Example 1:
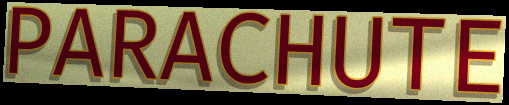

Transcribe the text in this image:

PARACHUTE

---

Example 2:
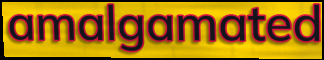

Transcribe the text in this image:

amalgamated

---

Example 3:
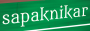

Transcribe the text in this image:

sapaknikar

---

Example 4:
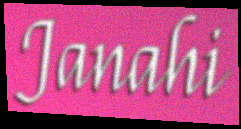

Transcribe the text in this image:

Janahi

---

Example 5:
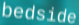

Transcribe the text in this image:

bedside